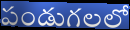
పండుగలలో